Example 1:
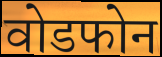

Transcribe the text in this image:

वोडफोन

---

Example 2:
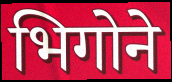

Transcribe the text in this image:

भिगोने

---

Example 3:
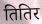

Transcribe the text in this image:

तितिर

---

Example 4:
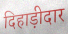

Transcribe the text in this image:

दिहाड़ीदार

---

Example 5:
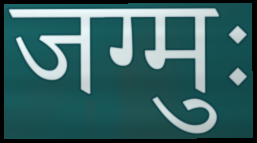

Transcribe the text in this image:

जग्मुः